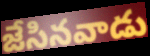
జేసినవాడు